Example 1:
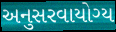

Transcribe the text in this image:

અનુસરવાયોગ્ય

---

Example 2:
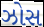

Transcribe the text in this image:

ઝોસ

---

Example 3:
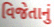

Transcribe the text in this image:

વિજેતાનું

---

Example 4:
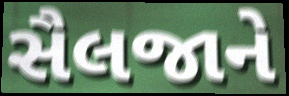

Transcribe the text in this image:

સૈલજાને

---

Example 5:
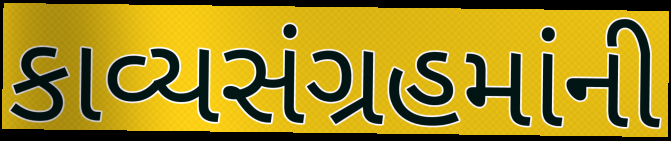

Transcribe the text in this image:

કાવ્યસંગ્રહમાંની